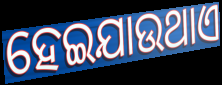
ହେଇଯାଉଥାଏ